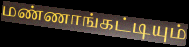
மண்ணாங்கட்டியும்